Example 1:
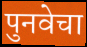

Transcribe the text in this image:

पुनवेचा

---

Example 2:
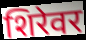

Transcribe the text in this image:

शिरेवर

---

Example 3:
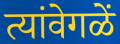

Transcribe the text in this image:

त्यांवेगळें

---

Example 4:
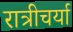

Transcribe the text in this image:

रात्रीचर्या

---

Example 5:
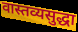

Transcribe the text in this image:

वास्तव्यसुद्धा